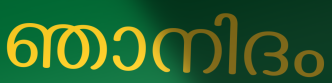
ഞാനിദം